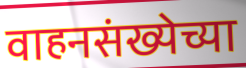
वाहनसंख्येच्या